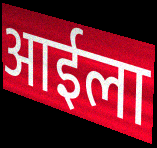
आईला